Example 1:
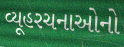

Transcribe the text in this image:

વ્યૂહરચનાઓનો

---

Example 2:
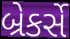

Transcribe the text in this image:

બ્રેકર્સે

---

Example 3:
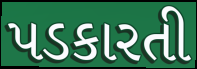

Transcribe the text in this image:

પડકારતી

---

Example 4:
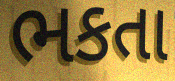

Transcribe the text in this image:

ભકતા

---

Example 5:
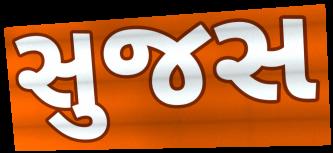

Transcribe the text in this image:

સુજસ